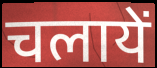
चलायें